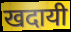
खदायी